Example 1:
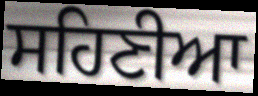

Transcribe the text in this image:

ਸਹਿਣੀਆ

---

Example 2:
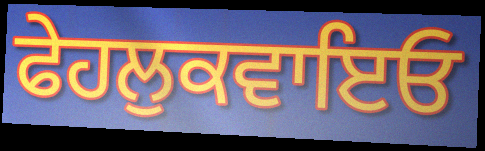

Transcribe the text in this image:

ਫੇਹਲੁਕਵਾਇਓ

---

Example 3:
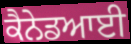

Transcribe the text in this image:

ਕੈਨੇਡਆਈ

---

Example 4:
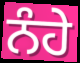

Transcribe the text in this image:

ਨੰਹੇ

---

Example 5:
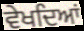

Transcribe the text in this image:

ਵੇਖਦਿਆਂ